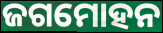
ଜଗମୋହନ